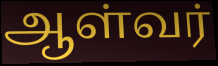
ஆள்வர்